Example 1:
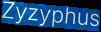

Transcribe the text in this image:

Zyzyphus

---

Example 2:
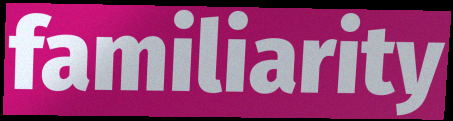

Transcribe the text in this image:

familiarity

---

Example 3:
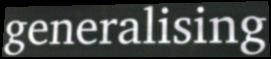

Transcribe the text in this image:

generalising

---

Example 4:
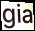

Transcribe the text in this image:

gia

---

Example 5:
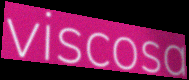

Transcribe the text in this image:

viscosa